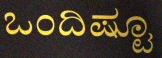
ಒಂದಿಷ್ಟೂ